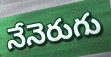
నేనెరుగు